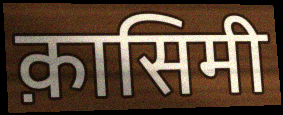
क़ासिमी